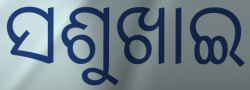
ସଶୁଖାଇ